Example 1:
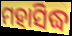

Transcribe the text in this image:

ମହାସିଦ୍ଧ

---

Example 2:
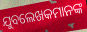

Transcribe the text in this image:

ଯୁବଲେଖକମାନଙ୍କ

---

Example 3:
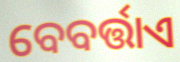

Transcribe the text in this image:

ବେବର୍ତ୍ତାଏ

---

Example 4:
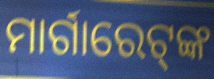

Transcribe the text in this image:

ମାର୍ଗାରେଟ୍‍ଙ୍କ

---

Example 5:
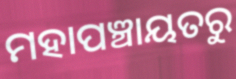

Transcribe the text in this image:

ମହାପଞ୍ଚାୟତରୁ